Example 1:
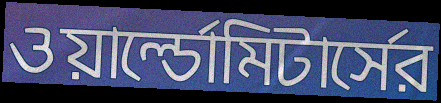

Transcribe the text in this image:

ওয়ার্ল্ডোমিটার্সের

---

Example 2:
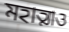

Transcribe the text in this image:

মহাত্মাও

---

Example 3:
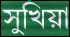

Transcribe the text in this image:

সুখিয়া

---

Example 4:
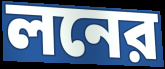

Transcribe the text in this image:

লনের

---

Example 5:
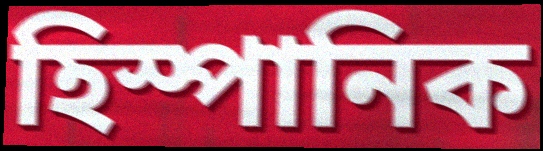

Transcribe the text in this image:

হিস্পানিক